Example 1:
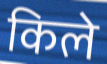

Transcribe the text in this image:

किले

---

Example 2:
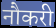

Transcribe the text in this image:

नौकरी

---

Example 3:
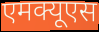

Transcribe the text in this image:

एमक्यूएस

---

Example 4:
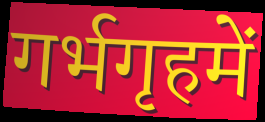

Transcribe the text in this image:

गर्भगृहमें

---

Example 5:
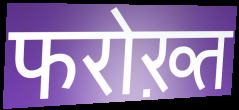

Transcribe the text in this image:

फरोख़्त